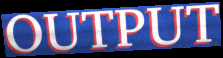
OUTPUT